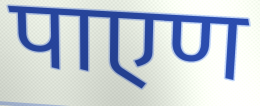
पाएण